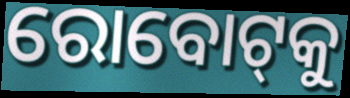
ରୋବୋଟ୍‌କୁ